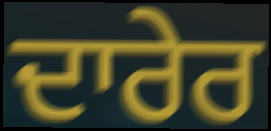
ਦਾਰੇਰ